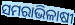
ସମରାଭିଳାଷୀ